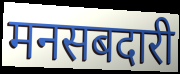
मनसबदारी